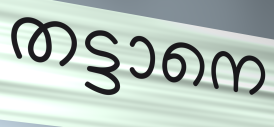
തട്ടാനെ